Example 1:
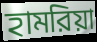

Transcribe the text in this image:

হামরিয়া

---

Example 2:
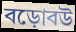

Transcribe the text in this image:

বড়োবউ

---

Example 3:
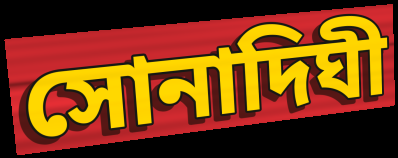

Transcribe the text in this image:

সোনাদিঘী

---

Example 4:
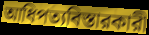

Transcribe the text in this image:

আধিপত্যবিস্তারকারী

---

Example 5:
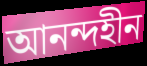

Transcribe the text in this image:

আনন্দহীন